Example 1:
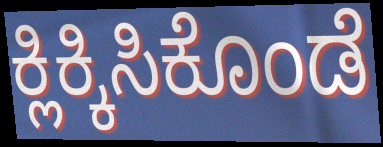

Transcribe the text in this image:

ಕ್ಲಿಕ್ಕಿಸಿಕೊಂಡೆ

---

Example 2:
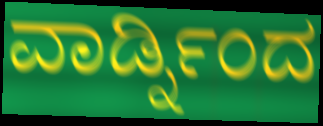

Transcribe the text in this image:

ವಾರ್ಡ್ನಿಂದ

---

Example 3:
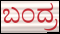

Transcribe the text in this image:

ಬಂದ್ರ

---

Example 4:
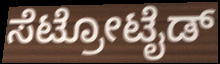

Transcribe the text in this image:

ಸೆಟ್ರೋಟೈಡ್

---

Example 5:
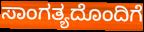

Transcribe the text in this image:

ಸಾಂಗತ್ಯದೊಂದಿಗೆ